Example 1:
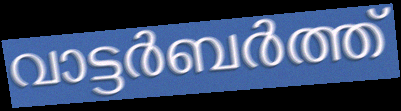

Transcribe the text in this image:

വാട്ടർബർത്ത്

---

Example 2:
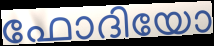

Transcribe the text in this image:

ഫോദിയോ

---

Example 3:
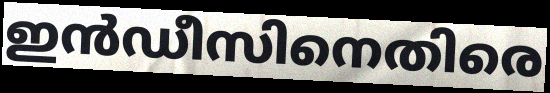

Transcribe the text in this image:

ഇൻഡീസിനെതിരെ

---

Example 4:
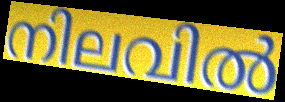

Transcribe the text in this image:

നിലവിൽ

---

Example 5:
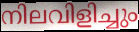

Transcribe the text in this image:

നിലവിളിച്ചും